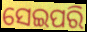
ସେଇପରି